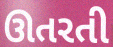
ઊતરતી